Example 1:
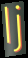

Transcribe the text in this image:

lj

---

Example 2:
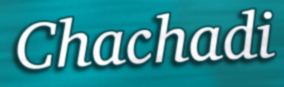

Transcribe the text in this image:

Chachadi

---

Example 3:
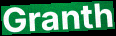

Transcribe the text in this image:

Granth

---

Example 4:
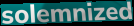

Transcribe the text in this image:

solemnized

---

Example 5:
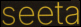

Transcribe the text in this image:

seeta